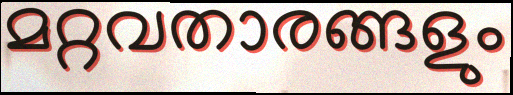
മറ്റവതാരങ്ങളും